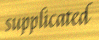
supplicated